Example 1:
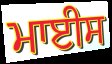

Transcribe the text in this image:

ਮਾਈਸ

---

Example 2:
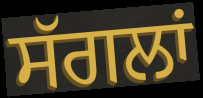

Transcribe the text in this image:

ਸੱਗਲਾਂ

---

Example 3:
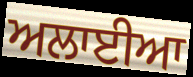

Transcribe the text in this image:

ਅਲਾਈਆ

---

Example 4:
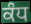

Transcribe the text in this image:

ਕੰਧ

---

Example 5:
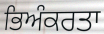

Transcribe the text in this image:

ਭਿਅੰਕਰਤਾ